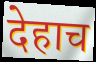
देहाच